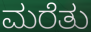
ಮರೆತು